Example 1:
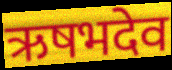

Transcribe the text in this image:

ऋषभदेव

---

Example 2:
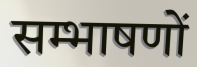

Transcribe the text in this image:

सम्भाषणों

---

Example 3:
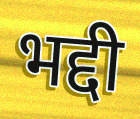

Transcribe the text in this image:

भद्दी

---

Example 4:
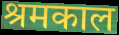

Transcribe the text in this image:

श्रमकाल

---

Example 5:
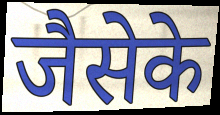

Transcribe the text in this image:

जैसेके